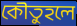
কৌতুহলে